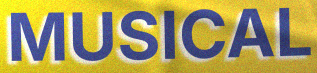
MUSICAL